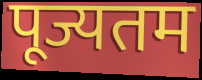
पूज्यतम